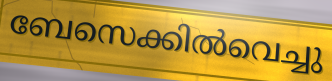
ബേസെക്കിൽവെച്ചു